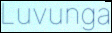
Luvunga